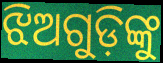
ଝିଅଗୁଡ଼ିଙ୍କୁ